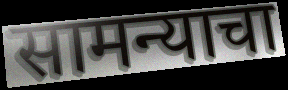
सामन्याचा